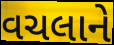
વચલાને